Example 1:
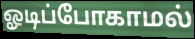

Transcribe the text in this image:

ஓடிப்போகாமல்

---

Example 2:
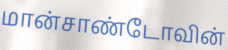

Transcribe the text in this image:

மான்சாண்டோவின்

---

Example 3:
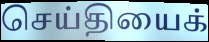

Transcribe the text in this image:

செய்தியைக்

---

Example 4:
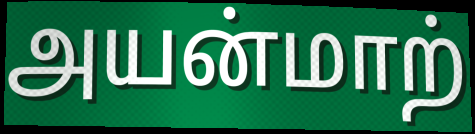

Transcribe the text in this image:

அயன்மாற்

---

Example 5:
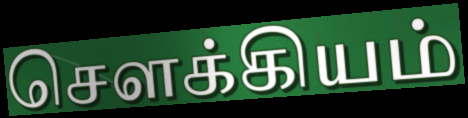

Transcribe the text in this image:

சௌக்கியம்